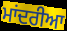
ਮਾਂਦਰੀਆ